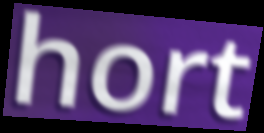
hort